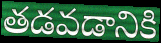
తడవడానికి